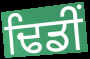
ਢਿਡੀਂ